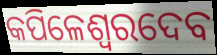
କପିଳେଶ୍ୱରଦେବ